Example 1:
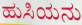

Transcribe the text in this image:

ಹುಸಿಯನು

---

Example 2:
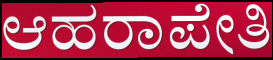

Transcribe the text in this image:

ಆಹರಾಪೇತಿ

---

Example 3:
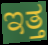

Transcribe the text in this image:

ಇತ್ತ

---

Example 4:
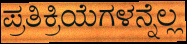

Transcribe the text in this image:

ಪ್ರತಿಕ್ರಿಯೆಗಳನ್ನೆಲ್ಲ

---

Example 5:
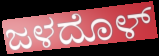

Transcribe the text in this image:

ಜಳದೊಳ್